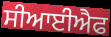
ਸੀਆਈਐਫ